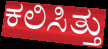
ಕಲಿಸಿತ್ತು